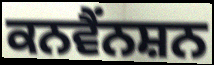
ਕਨਵੈਂਨਸ਼ਨ